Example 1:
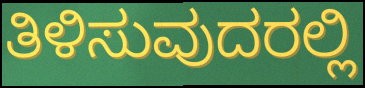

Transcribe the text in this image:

ತಿಳಿಸುವುದರಲ್ಲಿ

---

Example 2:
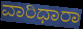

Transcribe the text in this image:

ವಾರಿಧಾರಾ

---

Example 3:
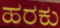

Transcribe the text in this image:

ಹರಕು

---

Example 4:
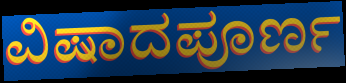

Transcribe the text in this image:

ವಿಷಾದಪೂರ್ಣ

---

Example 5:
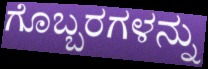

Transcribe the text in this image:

ಗೊಬ್ಬರಗಳನ್ನು